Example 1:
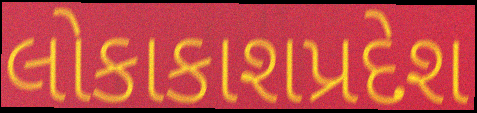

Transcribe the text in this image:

લોકાકાશપ્રદેશ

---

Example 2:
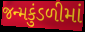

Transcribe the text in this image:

જન્મકુંડળીમાં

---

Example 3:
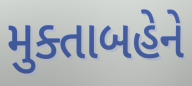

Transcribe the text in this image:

મુક્તાબહેને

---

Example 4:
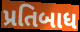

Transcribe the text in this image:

પ્રતિબાધ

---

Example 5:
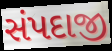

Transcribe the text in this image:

સંપદાજી